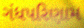
ગંધપરિણામ